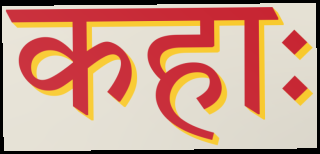
कहाः